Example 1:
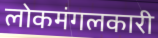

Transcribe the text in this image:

लोकमंगलकारी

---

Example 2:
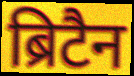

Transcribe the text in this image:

ब्रिटैन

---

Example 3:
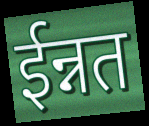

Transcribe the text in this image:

ईन्नत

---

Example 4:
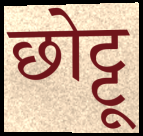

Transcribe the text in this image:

छोट्टू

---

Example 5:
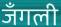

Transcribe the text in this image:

जँगली